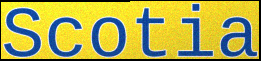
Scotia